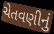
ચેતવણીનું